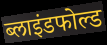
ब्लाइंडफोल्ड